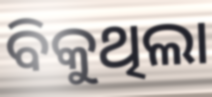
ବିକୁଥିଲା